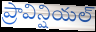
ప్రావిన్షియల్